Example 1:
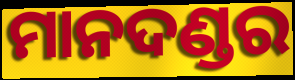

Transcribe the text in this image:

ମାନଦଣ୍ଡର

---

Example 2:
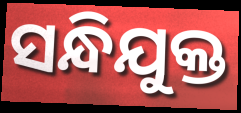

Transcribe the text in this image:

ସନ୍ଧିଯୁକ୍ତ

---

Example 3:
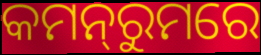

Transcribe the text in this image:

କମନ୍‌ରୁମରେ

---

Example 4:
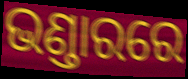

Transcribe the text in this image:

ଭଣ୍ଡାରରେ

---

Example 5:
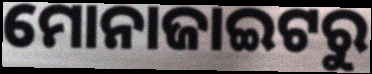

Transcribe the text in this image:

ମୋନାଜାଇଟରୁ